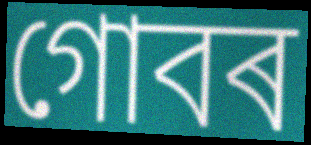
গোবৰ